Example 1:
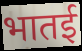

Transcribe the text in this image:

भातई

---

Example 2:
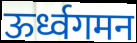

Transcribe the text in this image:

ऊर्ध्वगमन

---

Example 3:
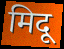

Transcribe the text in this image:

मिदू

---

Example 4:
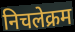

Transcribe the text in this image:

निचलेक्रम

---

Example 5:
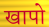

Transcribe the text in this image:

खापो